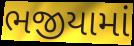
ભજીયામાં